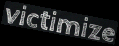
victimize